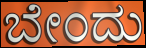
ಬೇಂದು